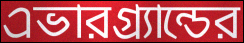
এভারগ্র্যান্ডের